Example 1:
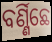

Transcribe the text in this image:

ବର୍ଣ୍ଣିଛେ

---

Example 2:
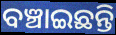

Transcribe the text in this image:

ବଞ୍ଚାଇଛନ୍ତି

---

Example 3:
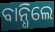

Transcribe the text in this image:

ବାନ୍ଧିଲେ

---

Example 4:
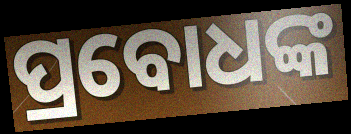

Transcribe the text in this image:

ପ୍ରବୋଧଙ୍କ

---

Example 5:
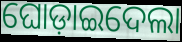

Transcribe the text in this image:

ଘୋଡ଼ାଇଦେଲା